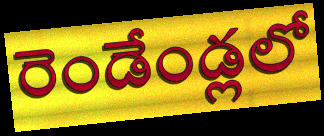
రెండేండ్లలో